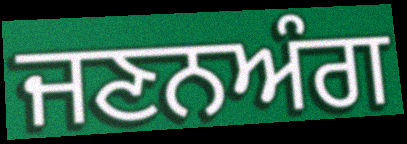
ਜਣਨਅੰਗ